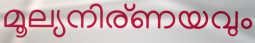
മൂല്യനിര്ണയവും